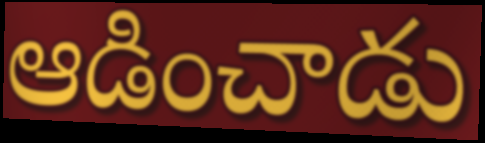
ఆడించాడు